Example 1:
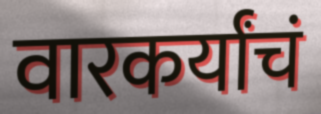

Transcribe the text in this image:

वारकर्यांचं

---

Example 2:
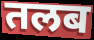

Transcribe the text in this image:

तलब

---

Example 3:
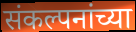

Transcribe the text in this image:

संकल्पनांच्या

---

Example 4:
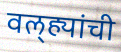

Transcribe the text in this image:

वल्ह्यांची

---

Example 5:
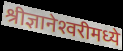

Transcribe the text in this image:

श्रीज्ञानेश्वरीमध्ये